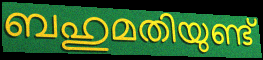
ബഹുമതിയുണ്ട്